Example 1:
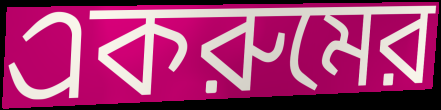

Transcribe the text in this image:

একরুমের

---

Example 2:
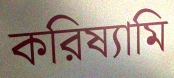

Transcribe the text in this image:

করিষ্যামি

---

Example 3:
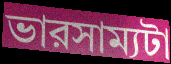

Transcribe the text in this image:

ভারসাম্যটা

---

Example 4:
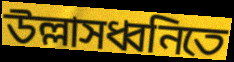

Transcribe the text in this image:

উল্লাসধ্বনিতে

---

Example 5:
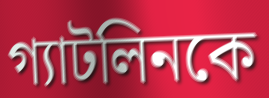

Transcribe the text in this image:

গ্যাটলিনকে